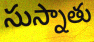
సుస్నాతు